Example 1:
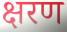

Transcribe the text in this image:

क्षरण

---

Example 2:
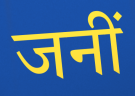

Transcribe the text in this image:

जनीं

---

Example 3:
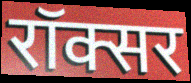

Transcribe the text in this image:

रॉक्सर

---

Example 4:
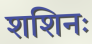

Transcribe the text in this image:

शशिनः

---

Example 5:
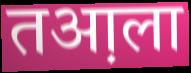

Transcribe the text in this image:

तआ़ला